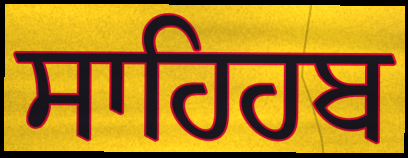
ਸਾਹਿਹਬ